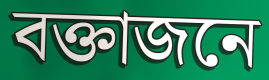
বক্তাজনে